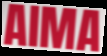
AIMA